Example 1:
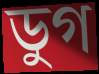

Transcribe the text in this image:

ডুগ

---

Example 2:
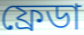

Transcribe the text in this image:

ফ্রেডা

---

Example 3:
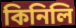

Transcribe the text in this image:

কিনিলি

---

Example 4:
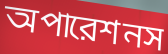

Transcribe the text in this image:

অপারেশনস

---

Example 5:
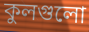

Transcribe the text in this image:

কুলগুলো